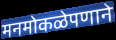
मनमोकळेपणाने